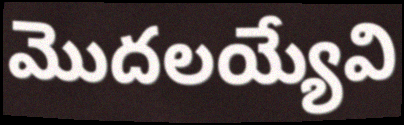
మొదలయ్యేవి